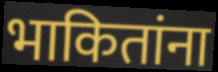
भाकितांना